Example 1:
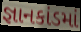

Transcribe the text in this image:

જ્ઞાનકાંડમાં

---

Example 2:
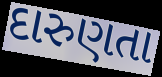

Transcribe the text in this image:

દારુણતા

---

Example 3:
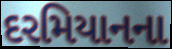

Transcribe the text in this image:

દરમિયાનના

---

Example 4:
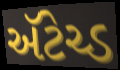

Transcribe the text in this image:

ઍટેચ્ડ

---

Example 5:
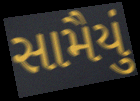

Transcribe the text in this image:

સામૈયું